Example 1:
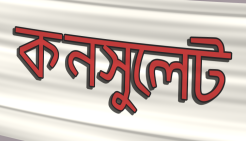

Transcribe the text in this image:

কনসুলেট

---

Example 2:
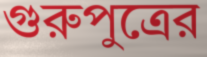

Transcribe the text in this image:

গুরুপুত্রের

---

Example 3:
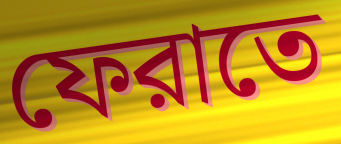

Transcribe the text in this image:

ফেরাতে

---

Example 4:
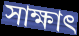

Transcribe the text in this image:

সাক্ষাৎ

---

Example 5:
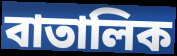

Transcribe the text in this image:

বাতালিক